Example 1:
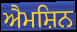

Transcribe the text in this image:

ਐਮਸ਼ਿਨ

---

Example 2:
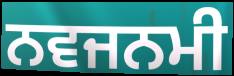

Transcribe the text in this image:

ਨਵਜਨਮੀ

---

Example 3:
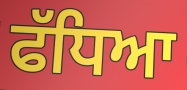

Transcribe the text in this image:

ਫੱਧਿਆ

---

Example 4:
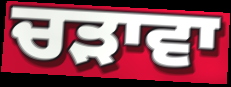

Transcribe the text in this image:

ਚੜਾਵਾ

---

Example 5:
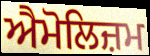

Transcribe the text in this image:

ਐਮੋਲਿਜ਼ਮ